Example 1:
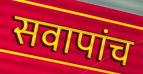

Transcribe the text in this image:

सवापांच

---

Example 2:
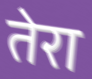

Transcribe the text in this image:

तेरा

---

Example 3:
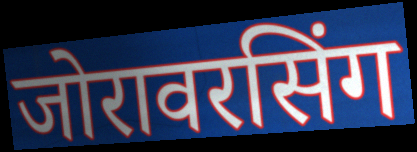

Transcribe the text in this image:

जोरावरसिंग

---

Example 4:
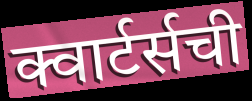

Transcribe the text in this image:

क्वार्टर्सची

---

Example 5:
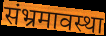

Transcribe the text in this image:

संभ्रमावस्था